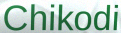
Chikodi